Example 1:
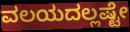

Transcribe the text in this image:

ವಲಯದಲ್ಲಷ್ಟೇ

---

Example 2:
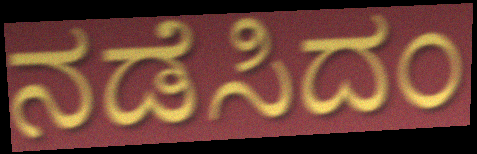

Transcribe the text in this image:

ನಡೆಸಿದಂ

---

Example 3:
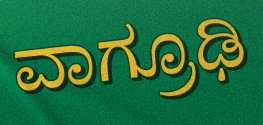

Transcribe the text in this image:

ವಾಗ್ರೂಢಿ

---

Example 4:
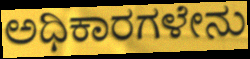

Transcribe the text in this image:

ಅಧಿಕಾರಗಳೇನು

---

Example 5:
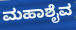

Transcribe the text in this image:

ಮಹಾಶೈವ